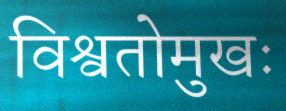
विश्वतोमुखः